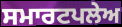
ਸਮਾਰਟਪਲੇਅ